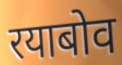
रयाबोव